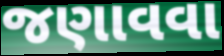
જણાવવા